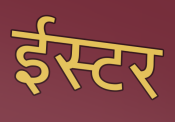
ईस्टर